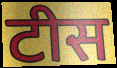
टीस